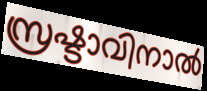
സ്രഷ്ടാവിനാൽ